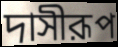
দাসীরূপ